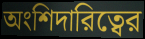
অংশিদারিত্বের